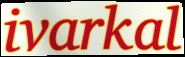
ivarkal